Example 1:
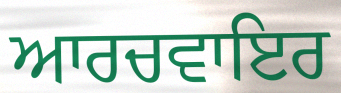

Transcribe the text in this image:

ਆਰਚਵਾਇਰ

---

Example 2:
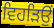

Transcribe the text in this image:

ਵਿਹੜਿਉਂ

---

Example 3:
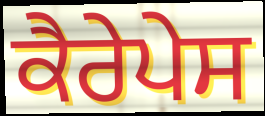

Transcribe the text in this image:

ਕੈਰੇਪੇਸ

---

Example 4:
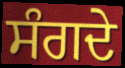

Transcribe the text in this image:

ਸੰਗਦੇ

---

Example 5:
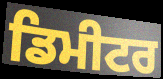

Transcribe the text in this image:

ਡਿਮੀਟਰ